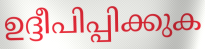
ഉദ്ദീപിപ്പിക്കുക